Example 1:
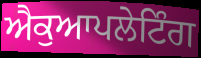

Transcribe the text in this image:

ਐਕੁਆਪਲੇਟਿੰਗ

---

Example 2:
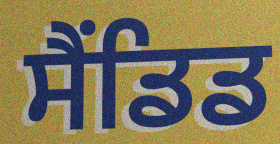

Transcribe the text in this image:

ਸੈਂਡਿਡ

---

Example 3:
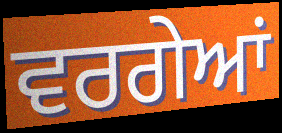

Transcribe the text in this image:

ਵਰਗੇਆਂ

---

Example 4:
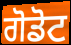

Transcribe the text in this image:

ਗੋਡੋਟ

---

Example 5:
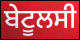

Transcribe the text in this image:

ਬੇਟੂਲਸੀ